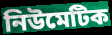
নিউমেটিক